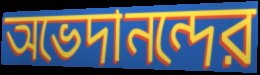
অভেদানন্দের